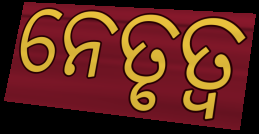
ନେତୃତ୍ଵ